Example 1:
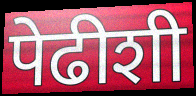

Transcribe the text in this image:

पेढीशी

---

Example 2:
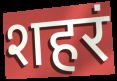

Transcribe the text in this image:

शहरं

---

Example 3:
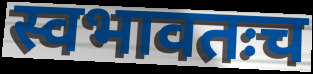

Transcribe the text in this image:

स्वभावतःच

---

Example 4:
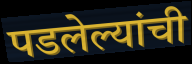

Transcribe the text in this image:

पडलेल्यांची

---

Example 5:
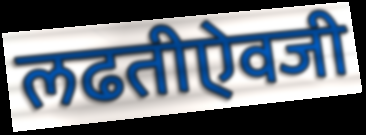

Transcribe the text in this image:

लढतीऐवजी